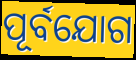
ପୂର୍ବଯୋଗ